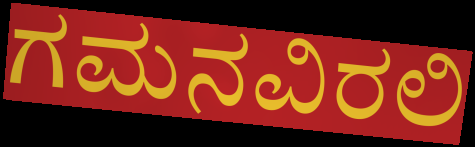
ಗಮನವಿರಲಿ